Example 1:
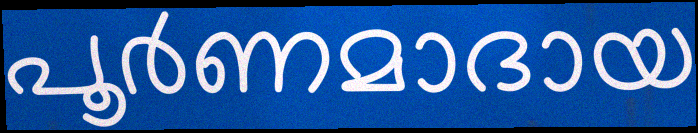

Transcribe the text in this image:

പൂർണമാദായ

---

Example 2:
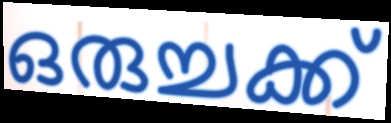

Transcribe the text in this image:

ഒരുച്ചക്ക്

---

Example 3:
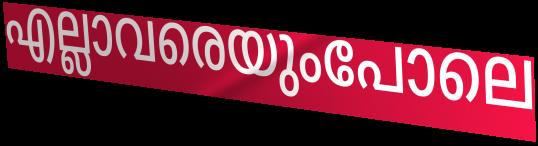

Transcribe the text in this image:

എല്ലാവരെയുംപോലെ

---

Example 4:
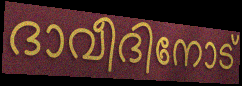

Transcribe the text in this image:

ദാവീദിനോട്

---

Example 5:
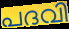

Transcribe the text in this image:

പദവി